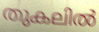
തുകലിൽ